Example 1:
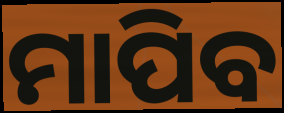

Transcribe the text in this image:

ମାପିବ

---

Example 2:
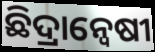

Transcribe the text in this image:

ଛିଦ୍ରାନ୍ୱେଷୀ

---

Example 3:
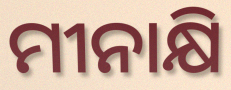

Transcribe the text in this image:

ମୀନାକ୍ଷି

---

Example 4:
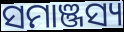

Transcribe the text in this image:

ସମାଞ୍ଜସ୍ୟ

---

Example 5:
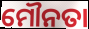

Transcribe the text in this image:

ମୌନତା